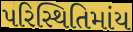
પરિસ્થિતિમાંય